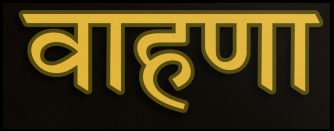
वाहणा